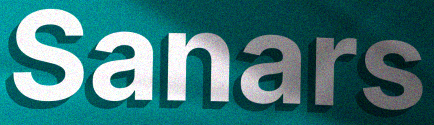
Sanars